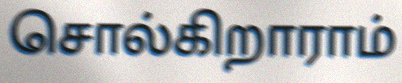
சொல்கிறாராம்